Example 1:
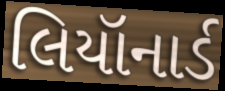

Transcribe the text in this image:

લિયૉનાર્ડ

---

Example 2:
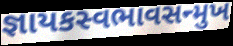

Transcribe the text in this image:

જ્ઞાયકસ્વભાવસન્મુખ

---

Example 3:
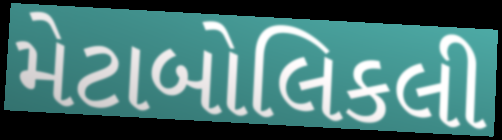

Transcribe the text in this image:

મેટાબોલિકલી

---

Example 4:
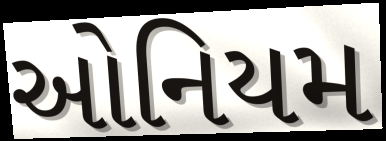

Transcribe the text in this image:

ઓનિયમ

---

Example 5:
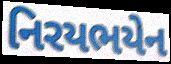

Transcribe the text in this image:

નિરયભયેન